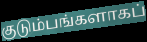
குடும்பங்களாகப்